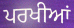
ਪਰਖੀਆਂ